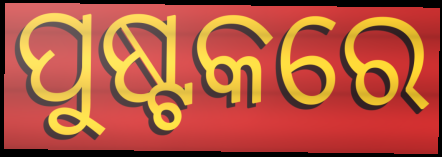
ପୁଷ୍ଟକରେ